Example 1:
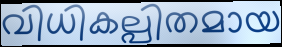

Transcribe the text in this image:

വിധികല്പിതമായ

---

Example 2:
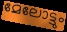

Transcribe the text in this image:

മേലോട്ടും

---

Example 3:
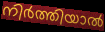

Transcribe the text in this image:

നിർത്തിയാൽ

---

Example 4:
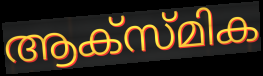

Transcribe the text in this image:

ആക്സ്മിക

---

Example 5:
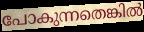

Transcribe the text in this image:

പോകുന്നതെങ്കിൽ